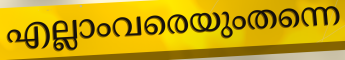
എല്ലാംവരെയുംതന്നെ